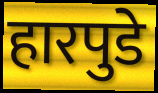
हारपुडे